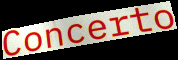
Concerto